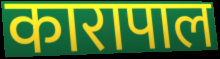
कारापाल